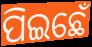
ପିଇଛେଁ